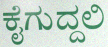
ಕೈಗುದ್ದಲಿ